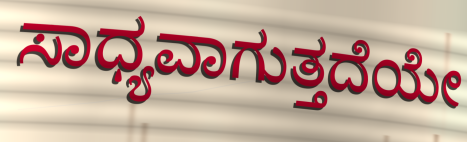
ಸಾಧ್ಯವಾಗುತ್ತದೆಯೇ